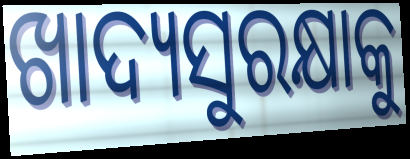
ଖାଦ୍ୟସୁରକ୍ଷାକୁ